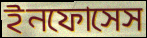
ইনফোসেস